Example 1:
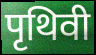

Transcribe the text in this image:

पृथिवी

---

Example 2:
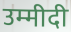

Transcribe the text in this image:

उम्मीदी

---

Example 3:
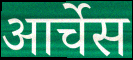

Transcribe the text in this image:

आर्चेस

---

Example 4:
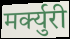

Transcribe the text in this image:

मर्क्युरी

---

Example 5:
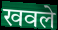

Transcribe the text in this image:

खवले